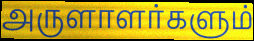
அருளாளர்களும்